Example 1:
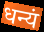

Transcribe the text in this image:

धन्यं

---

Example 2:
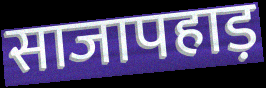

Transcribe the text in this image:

साजापहाड़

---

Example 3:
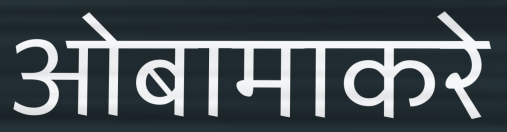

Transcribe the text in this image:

ओबामाकरे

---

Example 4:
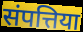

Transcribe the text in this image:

संपत्तिया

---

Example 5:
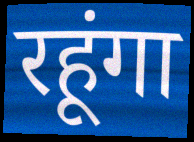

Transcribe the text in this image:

रहूंगा